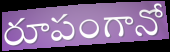
రూపంగానో